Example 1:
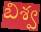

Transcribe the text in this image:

బిశ్వ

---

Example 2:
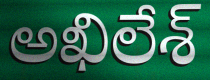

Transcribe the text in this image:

అఖిలేశ్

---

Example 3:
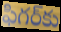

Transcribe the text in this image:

ఫిగర్‌కు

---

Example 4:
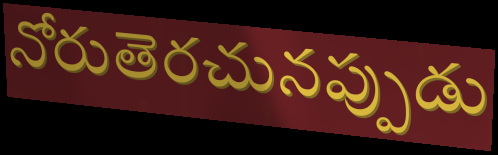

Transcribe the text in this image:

నోరుతెరచునప్పుడు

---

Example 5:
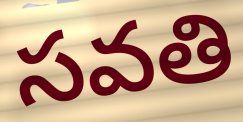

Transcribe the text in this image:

సవతి